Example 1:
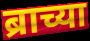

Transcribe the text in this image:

ब्राच्या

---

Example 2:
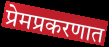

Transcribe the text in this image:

प्रेमप्रकरणात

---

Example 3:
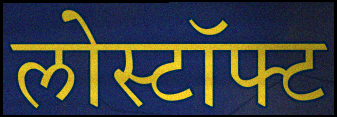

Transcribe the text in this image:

लोस्टॉफ्ट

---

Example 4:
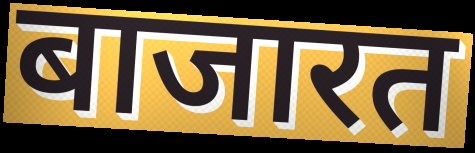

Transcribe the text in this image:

बाजारत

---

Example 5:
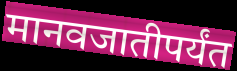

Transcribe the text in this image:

मानवजातीपर्यंत